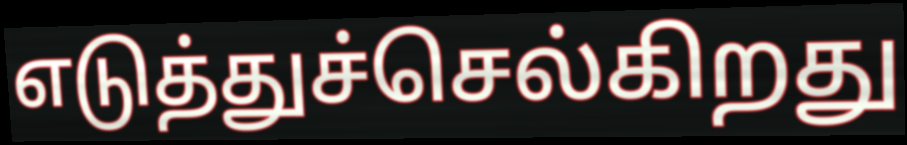
எடுத்துச்செல்கிறது